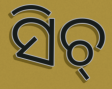
ସିଚ୍